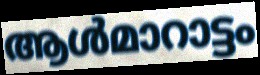
ആൾമാറാട്ടം